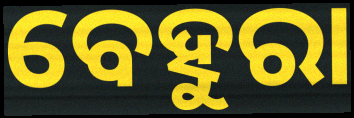
ବେହୁରା